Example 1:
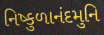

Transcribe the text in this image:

નિષ્કુળાનંદમુનિ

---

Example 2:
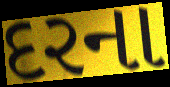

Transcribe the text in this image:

દરના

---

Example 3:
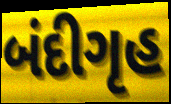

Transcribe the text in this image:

બંદીગૃહ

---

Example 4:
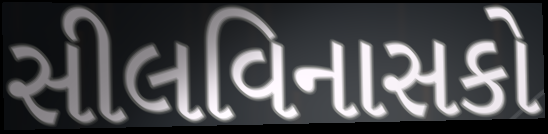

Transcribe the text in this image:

સીલવિનાસકો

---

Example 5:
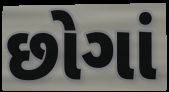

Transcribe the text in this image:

છોગાં